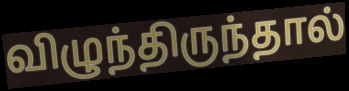
விழுந்திருந்தால்